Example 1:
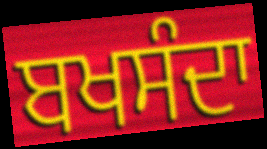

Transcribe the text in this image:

ਬਖਸੰਦਾ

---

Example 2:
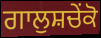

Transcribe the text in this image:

ਗਾਲੁਸ਼ਚੇਂਕੋ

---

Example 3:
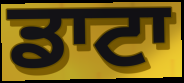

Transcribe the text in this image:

ਡਾਟਾ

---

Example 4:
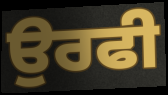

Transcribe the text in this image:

ਉਰਫੀ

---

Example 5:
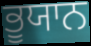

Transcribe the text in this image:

ਭੂਯਾਨ